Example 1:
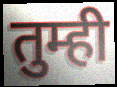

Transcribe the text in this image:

तुम्ही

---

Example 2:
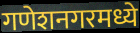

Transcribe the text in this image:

गणेशनगरमध्ये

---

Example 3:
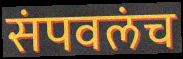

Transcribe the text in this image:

संपवलंच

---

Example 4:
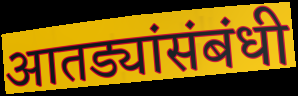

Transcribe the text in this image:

आतड्यांसंबंधी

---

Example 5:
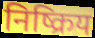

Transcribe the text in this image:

निष्क्रिय